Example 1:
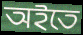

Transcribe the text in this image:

অইতে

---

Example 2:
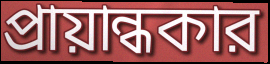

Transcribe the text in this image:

প্রায়ান্ধকার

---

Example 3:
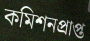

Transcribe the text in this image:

কমিশনপ্রাপ্ত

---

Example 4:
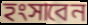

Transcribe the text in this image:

হংসাবেন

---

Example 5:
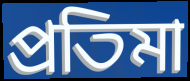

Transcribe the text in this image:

প্রতিমা